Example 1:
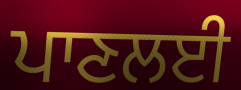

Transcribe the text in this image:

ਪਾਣਲਈ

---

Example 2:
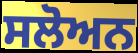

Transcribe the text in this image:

ਸਲੋਅਨ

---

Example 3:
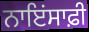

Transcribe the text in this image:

ਨਾਇਂਸਾਫ਼ੀ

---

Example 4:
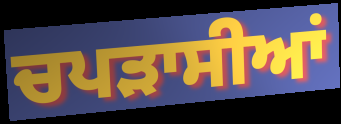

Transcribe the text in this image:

ਚਪੜਾਸੀਆਂ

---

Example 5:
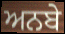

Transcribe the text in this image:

ਅਨਬੇ